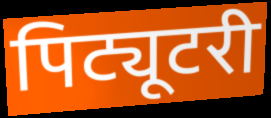
पिट्यूटरी